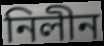
নিলীন